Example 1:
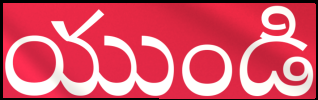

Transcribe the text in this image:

యుండి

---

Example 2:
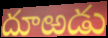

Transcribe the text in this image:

దూఱడు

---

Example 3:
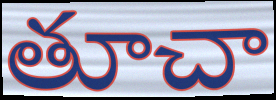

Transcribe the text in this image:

తూచా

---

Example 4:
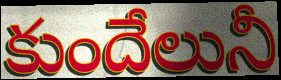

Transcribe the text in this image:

కుందేలునీ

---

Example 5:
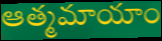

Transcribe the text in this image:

ఆత్మమాయాం